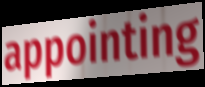
appointing